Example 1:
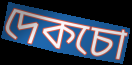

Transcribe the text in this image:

দেকচো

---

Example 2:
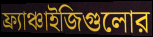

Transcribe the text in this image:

ফ্র্যাঞ্চাইজিগুলোর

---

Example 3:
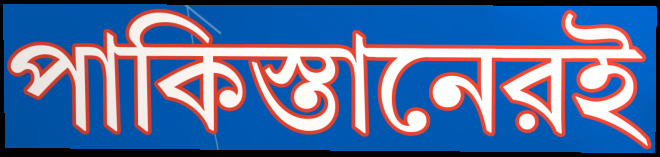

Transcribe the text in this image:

পাকিস্তানেরই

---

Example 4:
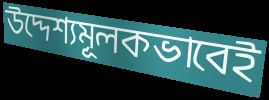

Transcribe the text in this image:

উদ্দেশ্যমূলকভাবেই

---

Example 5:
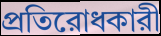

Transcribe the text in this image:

প্রতিরোধকারী